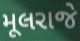
મૂલરાજે